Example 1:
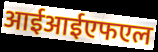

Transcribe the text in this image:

आईआईएफएल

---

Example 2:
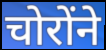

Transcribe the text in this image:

चोरोंने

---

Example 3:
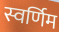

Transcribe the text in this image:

स्‍वर्णिम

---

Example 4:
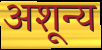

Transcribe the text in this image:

अशून्य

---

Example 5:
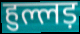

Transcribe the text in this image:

हुल्लड़